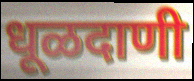
धूळदाणी